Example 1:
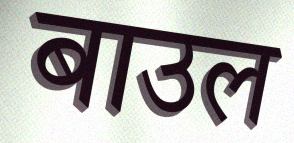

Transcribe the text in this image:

बाउल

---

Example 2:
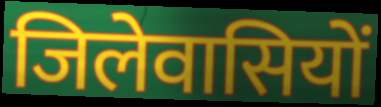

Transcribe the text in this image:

जिलेवासियों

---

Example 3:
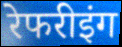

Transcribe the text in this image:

रेफरीइंग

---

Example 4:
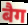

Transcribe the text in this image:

बैग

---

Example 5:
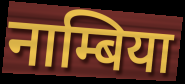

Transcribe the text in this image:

नाम्बिया